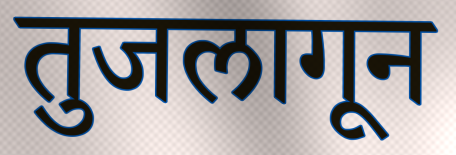
तुजलागून